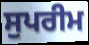
ਸੁਪਰੀਮ